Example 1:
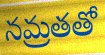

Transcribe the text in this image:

నమ్రతతో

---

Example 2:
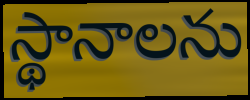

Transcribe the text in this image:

స్థానాలను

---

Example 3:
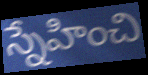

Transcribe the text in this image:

స్నేహించి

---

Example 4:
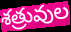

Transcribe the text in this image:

శత్రువుల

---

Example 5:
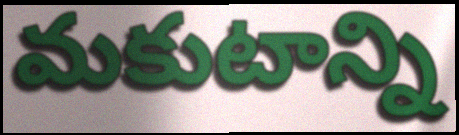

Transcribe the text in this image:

మకుటాన్ని